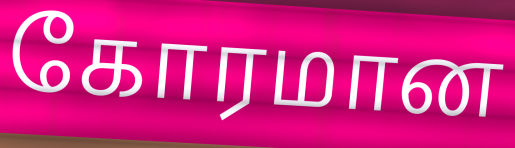
கோரமான